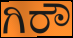
ಗಿರೌ